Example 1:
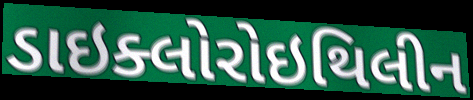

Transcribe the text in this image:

ડાઇક્લોરોઇથિલીન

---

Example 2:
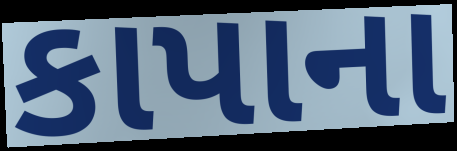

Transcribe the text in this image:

કાપાના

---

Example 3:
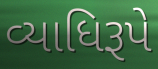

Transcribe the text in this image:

વ્યાધિરૂપે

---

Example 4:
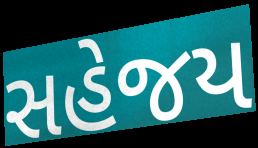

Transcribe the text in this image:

સહેજય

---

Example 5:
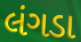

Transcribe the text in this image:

લંગડા